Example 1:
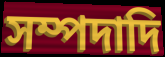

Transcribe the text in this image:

সম্পদাদি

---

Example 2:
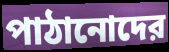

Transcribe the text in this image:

পাঠানোদের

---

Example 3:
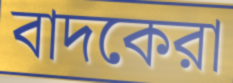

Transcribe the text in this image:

বাদকেরা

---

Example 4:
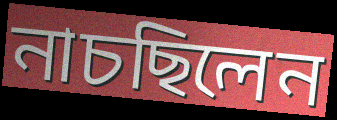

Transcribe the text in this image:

নাচছিলেন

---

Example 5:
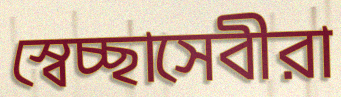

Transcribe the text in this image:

স্বেচ্ছাসেবীরা